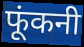
फूंकनी